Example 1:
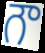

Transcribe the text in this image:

గౌ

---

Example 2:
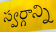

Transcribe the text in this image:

స్వర్గాన్ని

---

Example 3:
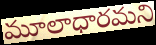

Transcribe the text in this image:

మూలాధారమని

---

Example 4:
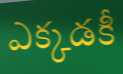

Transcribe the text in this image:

ఎక్కడకీ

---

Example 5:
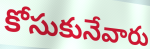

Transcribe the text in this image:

కోసుకునేవారు